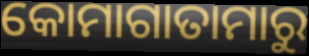
କୋମାଗାତାମାରୁ